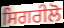
ਸਿਗਰੀਲੋ